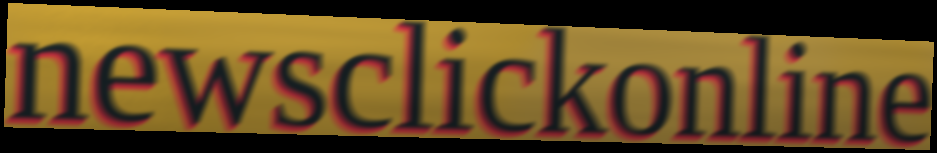
newsclickonline